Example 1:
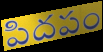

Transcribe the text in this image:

పిదపం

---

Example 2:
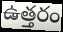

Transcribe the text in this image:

ఉత్తరం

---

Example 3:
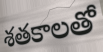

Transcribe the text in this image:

శతకాలతో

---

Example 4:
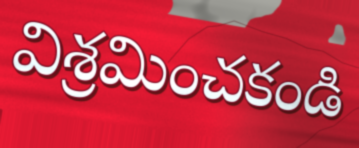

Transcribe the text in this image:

విశ్రమించకండి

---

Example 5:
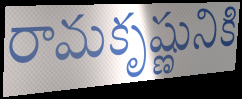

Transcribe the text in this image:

రామకృష్ణునికి